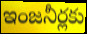
ఇంజనీర్లకు